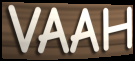
VAAH